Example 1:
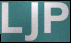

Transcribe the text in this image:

LJP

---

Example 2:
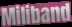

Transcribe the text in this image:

Miliband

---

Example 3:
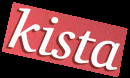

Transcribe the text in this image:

kista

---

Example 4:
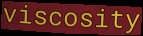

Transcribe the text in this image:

viscosity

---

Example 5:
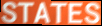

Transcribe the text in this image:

STATES